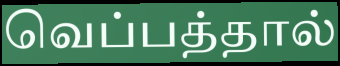
வெப்பத்தால்